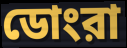
ডোংরা